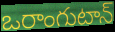
ఒరాంగుటాన్